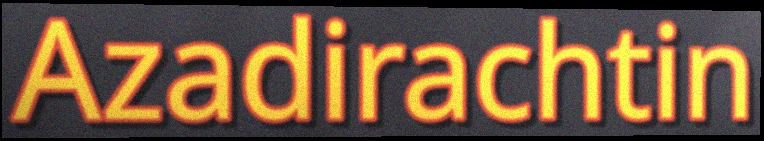
Azadirachtin